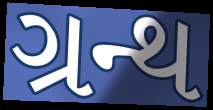
ગ્રન્થ